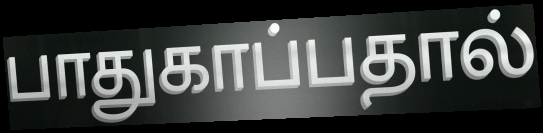
பாதுகாப்பதால்